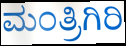
ಮಂತ್ರಿಗಿರಿ